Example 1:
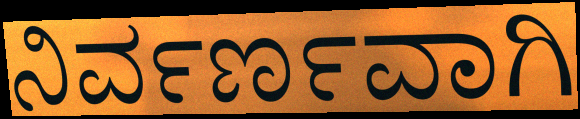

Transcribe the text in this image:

ನಿರ್ವರ್ಣವಾಗಿ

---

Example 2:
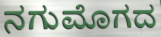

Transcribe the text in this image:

ನಗುಮೊಗದ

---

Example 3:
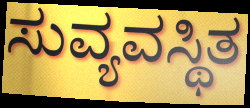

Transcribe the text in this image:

ಸುವ್ಯವಸ್ಥಿತ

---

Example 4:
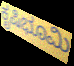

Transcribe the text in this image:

ಕೃಷಿಭೂಮಿ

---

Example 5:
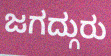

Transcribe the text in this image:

ಜಗದ್ಗುರು